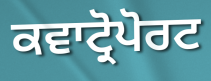
ਕਵਾਟ੍ਰੋਪੋਰਟ